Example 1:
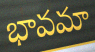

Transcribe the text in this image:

భావమా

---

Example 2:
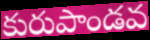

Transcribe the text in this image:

కురుపాండవ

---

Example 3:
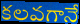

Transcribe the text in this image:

కలవగానే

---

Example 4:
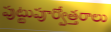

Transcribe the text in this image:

పుట్టుపూర్వోత్తరాలు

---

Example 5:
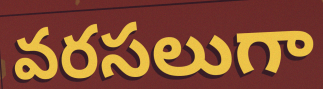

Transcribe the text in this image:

వరసలుగా